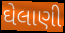
ઘેલાણી